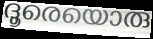
ദൂരെയൊരു